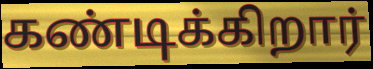
கண்டிக்கிறார்